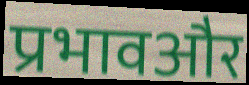
प्रभावऔर